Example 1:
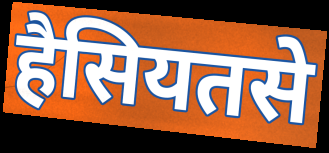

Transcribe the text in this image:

हैसियतसे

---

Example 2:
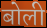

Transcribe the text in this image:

बोली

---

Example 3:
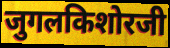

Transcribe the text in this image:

जुगलकिशोरजी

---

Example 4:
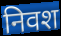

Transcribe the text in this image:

निवश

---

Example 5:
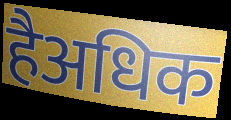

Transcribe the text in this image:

हैअधिक